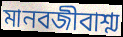
মানবজীবাশ্ম